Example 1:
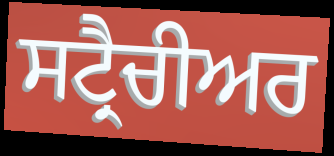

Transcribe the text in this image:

ਸਟ੍ਰੈਚੀਅਰ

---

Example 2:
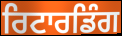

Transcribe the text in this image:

ਰਿਟਾਰਡਿੰਗ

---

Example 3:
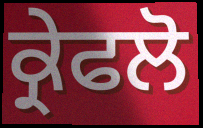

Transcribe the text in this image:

ਕ੍ਰੇਫਲੋ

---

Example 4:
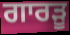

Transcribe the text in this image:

ਗਾਰੜੂ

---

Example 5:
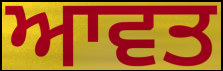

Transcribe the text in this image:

ਆਵਤ